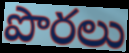
పొరలు